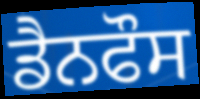
ਡੈਨਫੌਸ